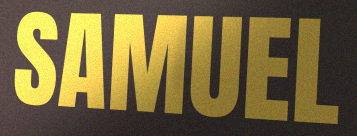
SAMUEL